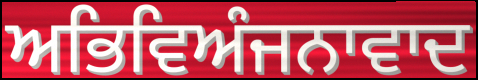
ਅਭਿਵਿਅੰਜਨਾਵਾਦ